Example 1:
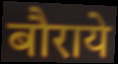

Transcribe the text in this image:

बौराये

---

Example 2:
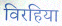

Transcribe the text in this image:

विरहिया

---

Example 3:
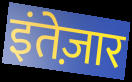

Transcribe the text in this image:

इंतेज़ार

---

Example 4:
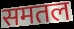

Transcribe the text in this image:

समतल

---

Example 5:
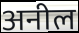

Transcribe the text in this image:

अनील